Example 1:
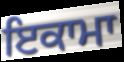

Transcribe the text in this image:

ਇਕਾਮਾ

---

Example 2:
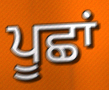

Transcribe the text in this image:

ਪੂਛਾਂ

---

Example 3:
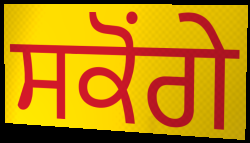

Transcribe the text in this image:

ਸਕੋਂਗੇ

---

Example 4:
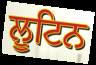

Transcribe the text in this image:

ਲੂਟਿਨ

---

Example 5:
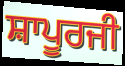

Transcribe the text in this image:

ਸ਼ਾਪੂਰਜੀ